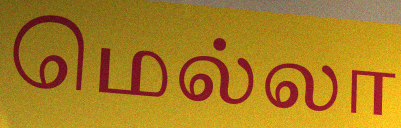
மெல்லா